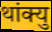
थांक्यु